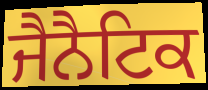
ਜੈਨੈਟਿਕ